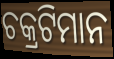
ଚକ୍ରଟିମାନ